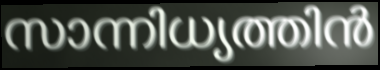
സാന്നിധ്യത്തിൻ